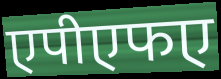
एपीएफए